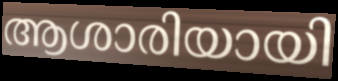
ആശാരിയായി